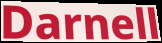
Darnell